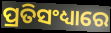
ପ୍ରତିସଂଧ୍ୟାରେ